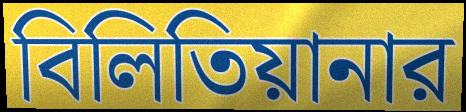
বিলিতিয়ানার